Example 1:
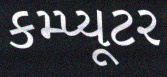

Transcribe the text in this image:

કમ્પ્યૂટર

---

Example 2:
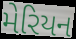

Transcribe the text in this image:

મેરિયન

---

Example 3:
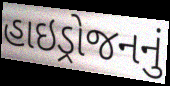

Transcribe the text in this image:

હાઇડ્રોજનનું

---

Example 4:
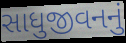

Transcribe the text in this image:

સાધુજીવનનું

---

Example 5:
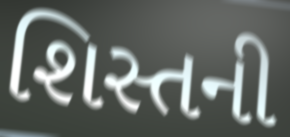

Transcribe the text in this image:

શિસ્તની